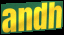
andh